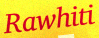
Rawhiti